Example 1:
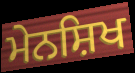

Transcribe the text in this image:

ਮੇਨਸ਼ਿਖ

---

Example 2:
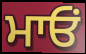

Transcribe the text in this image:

ਮਾਓਂ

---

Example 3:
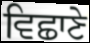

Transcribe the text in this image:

ਵਿਛਾਣੇ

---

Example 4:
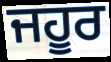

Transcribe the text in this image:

ਜਹੂਰ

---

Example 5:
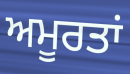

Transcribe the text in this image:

ਅਮੂਰਤਾਂ